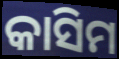
କାସିମ